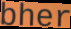
bher